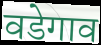
वडेगाव